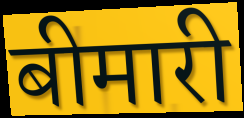
बीमारी